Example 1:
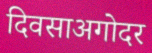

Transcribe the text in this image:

दिवसाअगोदर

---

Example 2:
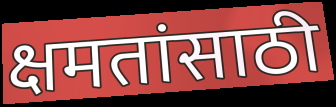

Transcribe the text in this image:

क्षमतांसाठी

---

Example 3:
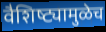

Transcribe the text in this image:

वैशिष्ट्यामुळेच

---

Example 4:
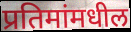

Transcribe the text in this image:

प्रतिमांमधील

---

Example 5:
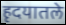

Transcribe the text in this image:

हृदयातले